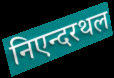
निएन्दरथल